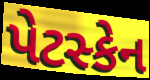
પેટસ્કેન